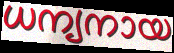
ധന്യനായ